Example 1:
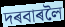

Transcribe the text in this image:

দৰবাৰলৈ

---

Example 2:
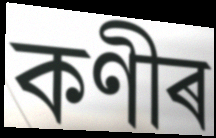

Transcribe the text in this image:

কণীৰ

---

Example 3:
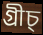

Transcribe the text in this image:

গ্ৰীচ্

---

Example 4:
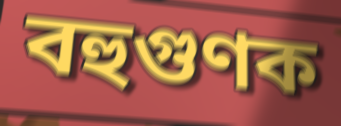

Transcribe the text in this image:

বহুগুণক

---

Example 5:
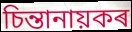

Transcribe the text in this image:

চিন্তানায়কৰ